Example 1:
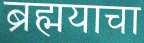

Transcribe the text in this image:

ब्रह्मयाचा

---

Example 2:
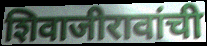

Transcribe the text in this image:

शिवाजीरावांची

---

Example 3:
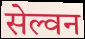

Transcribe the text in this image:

सेल्वन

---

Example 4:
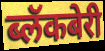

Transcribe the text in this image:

ब्लॅकबेरी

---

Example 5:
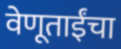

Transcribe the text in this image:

वेणूताईंचा